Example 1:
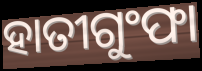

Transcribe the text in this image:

ହାତୀଗୁଂଫା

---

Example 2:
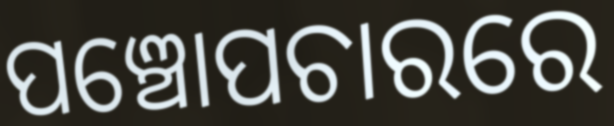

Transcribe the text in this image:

ପଞ୍ଚୋପଚାରରେ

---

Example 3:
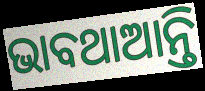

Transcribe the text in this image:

ଭାବଥାଆନ୍ତି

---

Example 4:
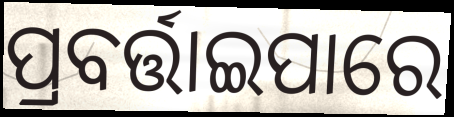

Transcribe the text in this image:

ପ୍ରବର୍ତ୍ତାଇପାରେ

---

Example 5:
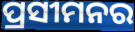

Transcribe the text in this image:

ପ୍ରସୀମନର